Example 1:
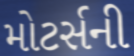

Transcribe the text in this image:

મોટર્સની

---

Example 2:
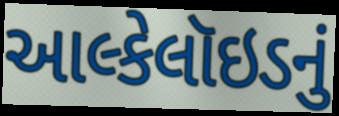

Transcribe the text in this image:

આલ્કેલૉઇડનું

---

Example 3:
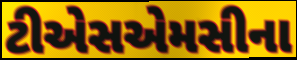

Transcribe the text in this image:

ટીએસએમસીના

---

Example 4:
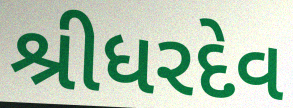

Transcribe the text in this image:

શ્રીધરદેવ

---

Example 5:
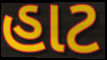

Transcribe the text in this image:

હાટ